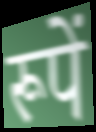
रूपें